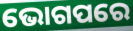
ଭୋଗପରେ